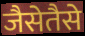
जैसेतैसे